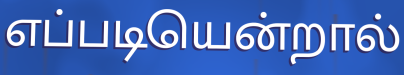
எப்படியென்றால்